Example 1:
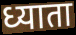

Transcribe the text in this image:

ध्याता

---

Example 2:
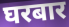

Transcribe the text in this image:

घरबार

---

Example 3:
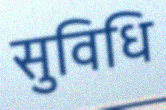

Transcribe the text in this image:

सुविधि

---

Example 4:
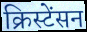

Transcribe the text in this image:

क्रिस्टेंसन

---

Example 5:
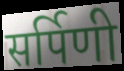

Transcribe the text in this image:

सर्पिणी